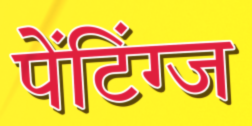
पेंटिंग्ज